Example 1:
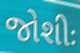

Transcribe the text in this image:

જોશીઃ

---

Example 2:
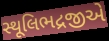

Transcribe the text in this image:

સ્થૂલિભદ્રજીએ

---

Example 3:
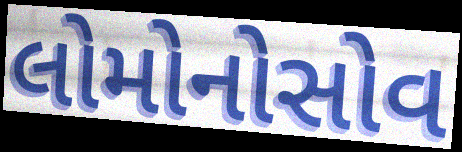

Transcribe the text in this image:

લોમોનોસોવ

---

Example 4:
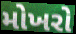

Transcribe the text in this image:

મોખરો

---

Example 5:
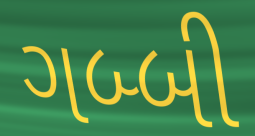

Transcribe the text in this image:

ગબ્બી